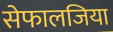
सेफालजिया